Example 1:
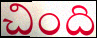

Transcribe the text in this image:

చింది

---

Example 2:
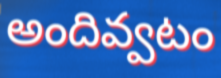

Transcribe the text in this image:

అందివ్వటం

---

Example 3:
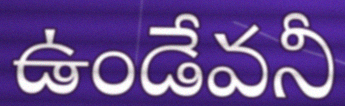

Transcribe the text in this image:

ఉండేవనీ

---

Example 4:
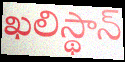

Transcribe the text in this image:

ఖలిస్థాన్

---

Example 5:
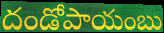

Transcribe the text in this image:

దండోపాయంబు